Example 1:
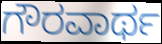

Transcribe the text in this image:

ಗೌರವಾರ್ಥ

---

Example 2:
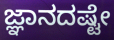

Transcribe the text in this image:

ಜ್ಞಾನದಷ್ಟೇ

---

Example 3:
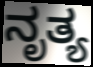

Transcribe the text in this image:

ನೃತ್ಯ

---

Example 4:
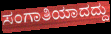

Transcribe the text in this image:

ಸಂಗಾತಿಯಾದದ್ದು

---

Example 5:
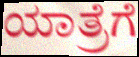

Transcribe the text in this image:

ಯಾತ್ರೆಗೆ